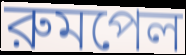
রুমপেল